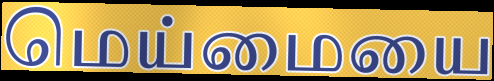
மெய்மையை